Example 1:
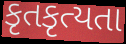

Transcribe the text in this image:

કૃતકૃત્યતા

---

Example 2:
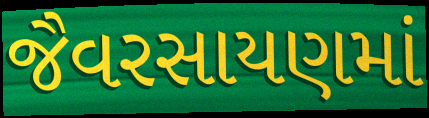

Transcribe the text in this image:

જૈવરસાયણમાં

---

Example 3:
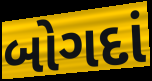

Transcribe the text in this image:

બોગદાં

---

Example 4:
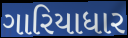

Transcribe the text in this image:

ગારિયાધાર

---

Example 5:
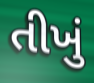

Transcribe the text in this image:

તીખું